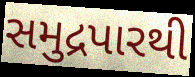
સમુદ્રપારથી